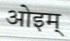
ओइम्